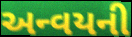
અન્વયની